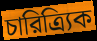
চারিত্র্যিক